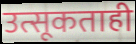
उत्सूकताही